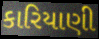
કારિયાણી